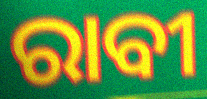
ରାବୀ